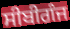
ਸੀਬੀਗੰਜ